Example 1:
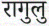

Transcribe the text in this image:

रागुलु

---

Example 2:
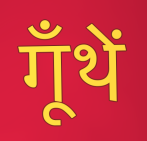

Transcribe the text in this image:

गूँथें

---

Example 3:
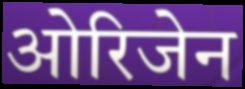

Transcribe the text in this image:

ओरिजेन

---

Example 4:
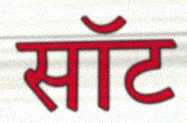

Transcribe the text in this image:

सॉट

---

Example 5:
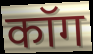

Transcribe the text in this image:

कॉग